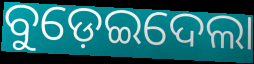
ବୁଡ଼େଇଦେଲା